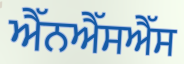
ਐੱਨਐੱਸਐੱਸ